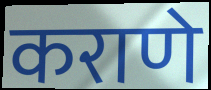
कराणे